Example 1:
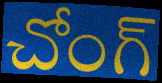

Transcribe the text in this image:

చోంగ్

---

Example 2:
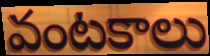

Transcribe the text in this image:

వంటకాలు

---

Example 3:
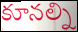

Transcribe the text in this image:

కూనల్ని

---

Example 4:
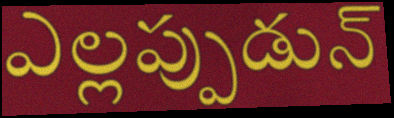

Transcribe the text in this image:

ఎల్లప్పుడున్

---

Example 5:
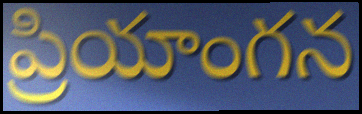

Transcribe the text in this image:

ప్రియాంగన